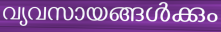
വ്യവസായങ്ങൾക്കും